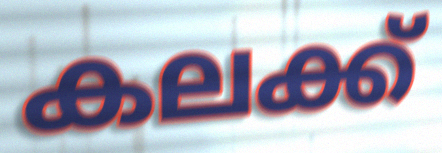
കലക്ക്